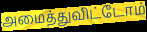
அமைத்துவிட்டோம்